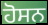
ਹੋਸਨ